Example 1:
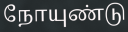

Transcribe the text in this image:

நோயுண்டு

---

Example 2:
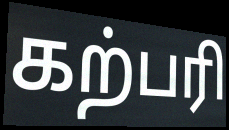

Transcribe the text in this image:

கற்பரி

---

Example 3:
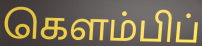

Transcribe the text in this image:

கௌம்பிப்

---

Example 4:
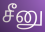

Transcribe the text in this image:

சீனு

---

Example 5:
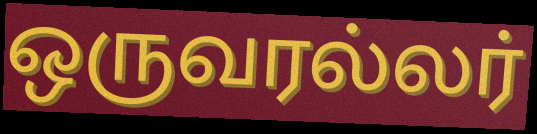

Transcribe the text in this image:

ஒருவரல்லர்